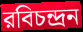
রবিচন্দ্রন